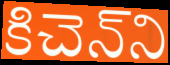
కిచెన్‌ని